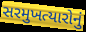
સરમુખત્યારોનું